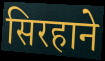
सिरहाने